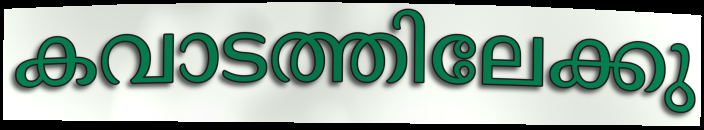
കവാടത്തിലേക്കു